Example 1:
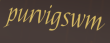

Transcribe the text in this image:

purvigswm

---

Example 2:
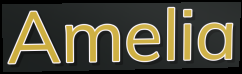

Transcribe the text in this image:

Amelia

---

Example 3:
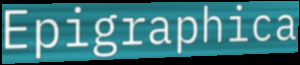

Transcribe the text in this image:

Epigraphica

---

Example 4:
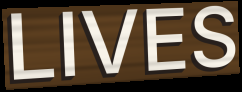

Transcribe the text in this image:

LIVES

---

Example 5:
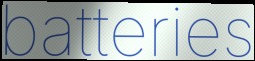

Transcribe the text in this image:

batteries